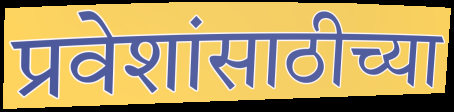
प्रवेशांसाठीच्या